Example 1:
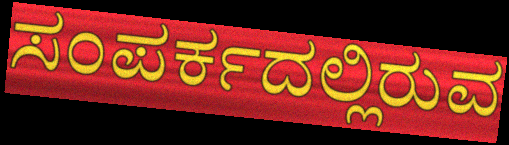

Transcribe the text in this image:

ಸಂಪರ್ಕದಲ್ಲಿರುವ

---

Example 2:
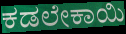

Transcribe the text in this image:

ಕಡಲೇಕಾಯಿ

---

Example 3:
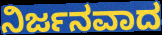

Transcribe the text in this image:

ನಿರ್ಜನವಾದ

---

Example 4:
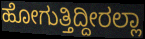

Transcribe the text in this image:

ಹೋಗುತ್ತಿದ್ದೀರಲ್ಲಾ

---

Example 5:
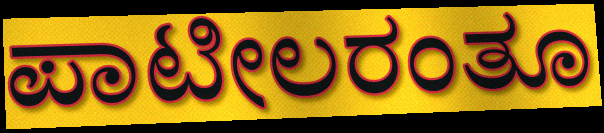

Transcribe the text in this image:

ಪಾಟೀಲರಂತೂ